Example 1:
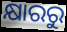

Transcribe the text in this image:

କ୍ଷାରରୁ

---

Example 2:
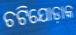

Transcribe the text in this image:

ଚଟିଯୋଡ଼ାକ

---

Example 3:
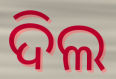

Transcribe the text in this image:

ଦିଲ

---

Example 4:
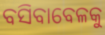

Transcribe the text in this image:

ବସିବାବେଳକୁ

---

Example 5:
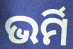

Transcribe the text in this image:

ଭର୍ମି